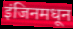
इंजिनमधून